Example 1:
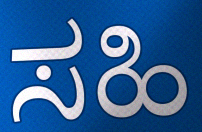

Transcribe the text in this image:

ಸಹಿ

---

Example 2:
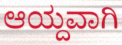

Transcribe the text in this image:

ಆಯ್ದವಾಗಿ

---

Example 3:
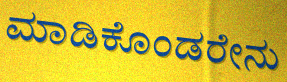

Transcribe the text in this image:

ಮಾಡಿಕೊಂಡರೇನು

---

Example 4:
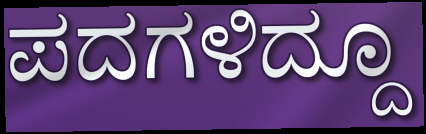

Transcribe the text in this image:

ಪದಗಳಿದ್ದೂ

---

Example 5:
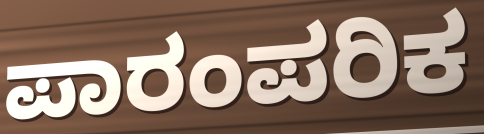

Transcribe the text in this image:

ಪಾರಂಪರಿಕ